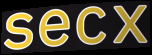
secx